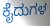
ಕೈದುಗಳ